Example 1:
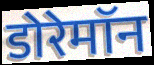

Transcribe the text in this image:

डोरेमॉन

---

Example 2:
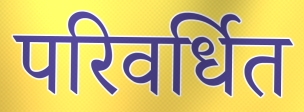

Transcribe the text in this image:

परिवर्धित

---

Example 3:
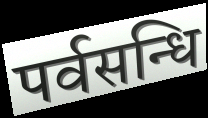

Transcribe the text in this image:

पर्वसन्धि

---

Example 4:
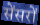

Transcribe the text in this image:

सेंसरों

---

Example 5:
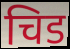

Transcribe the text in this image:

चिड